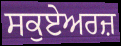
ਸਕੁਏਅਰਜ਼